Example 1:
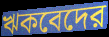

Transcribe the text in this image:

ঋকবেদের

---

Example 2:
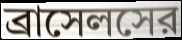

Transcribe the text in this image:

ব্রাসেলসের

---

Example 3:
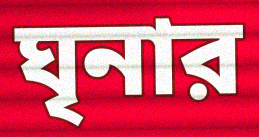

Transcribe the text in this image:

ঘৃনার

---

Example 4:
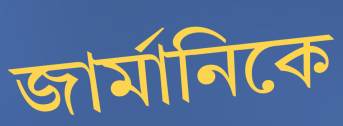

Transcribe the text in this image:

জার্মানিকে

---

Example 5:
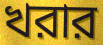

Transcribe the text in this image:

খরার